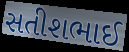
સતીશભાઈ